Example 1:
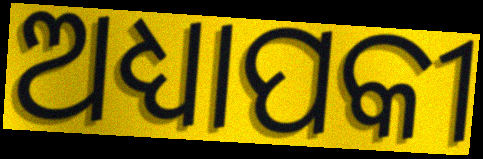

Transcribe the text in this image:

ଅଧ୍ୟାପକୀ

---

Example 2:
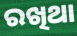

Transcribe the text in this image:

ରଖିଥା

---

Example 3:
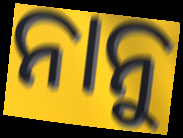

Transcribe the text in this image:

ନାନୁ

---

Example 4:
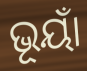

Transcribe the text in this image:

ଭୂୟାଁ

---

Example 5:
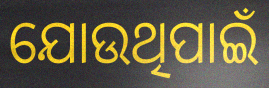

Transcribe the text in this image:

ଯୋଉଥିପାଇଁ